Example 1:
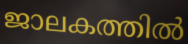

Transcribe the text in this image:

ജാലകത്തിൽ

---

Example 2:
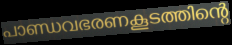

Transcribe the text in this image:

പാണ്ഡവഭരണകൂടത്തിന്റെ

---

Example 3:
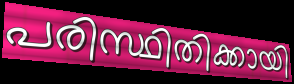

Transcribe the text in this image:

പരിസ്ഥിതിക്കായി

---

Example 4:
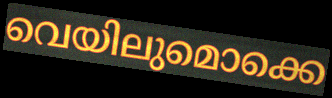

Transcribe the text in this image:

വെയിലുമൊക്കെ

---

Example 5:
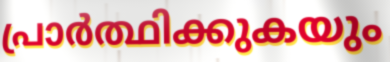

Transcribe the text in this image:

പ്രാർത്ഥിക്കുകയും